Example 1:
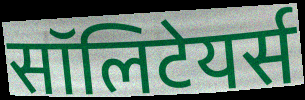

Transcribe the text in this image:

सॉलिटेयर्स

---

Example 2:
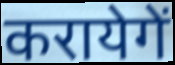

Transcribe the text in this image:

करायेगें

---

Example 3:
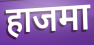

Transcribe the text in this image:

हाजमा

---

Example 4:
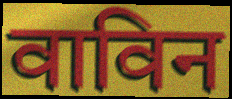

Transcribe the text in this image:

वाविन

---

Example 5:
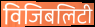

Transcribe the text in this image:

विजिबलिटी